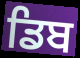
ਡਿਬ